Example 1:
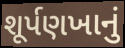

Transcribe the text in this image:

શૂર્પણખાનું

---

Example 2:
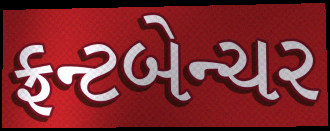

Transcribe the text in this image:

ફ્રન્ટબેન્ચર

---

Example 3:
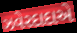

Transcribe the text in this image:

ઝવેરદાદાએ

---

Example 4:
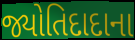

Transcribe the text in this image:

જ્યોતિદાદાના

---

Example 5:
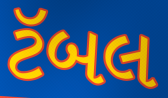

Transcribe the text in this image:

ટૅબલ